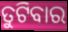
ତୁଟିବାର